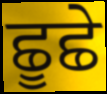
ਛੂਛੇ